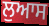
ਲੁਆਸ